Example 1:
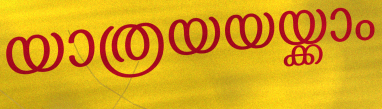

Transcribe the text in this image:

യാത്രയയയ്ക്കാം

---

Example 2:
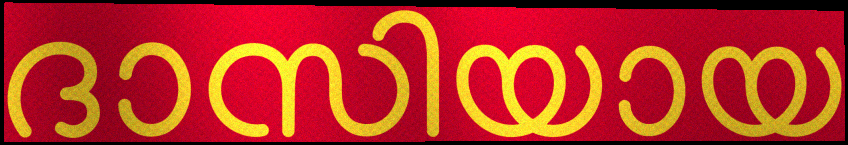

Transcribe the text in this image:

ദാസിയായ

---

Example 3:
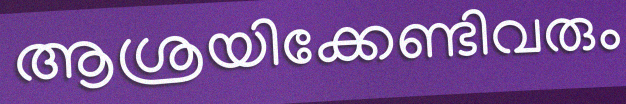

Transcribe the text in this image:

ആശ്രയിക്കേണ്ടിവരും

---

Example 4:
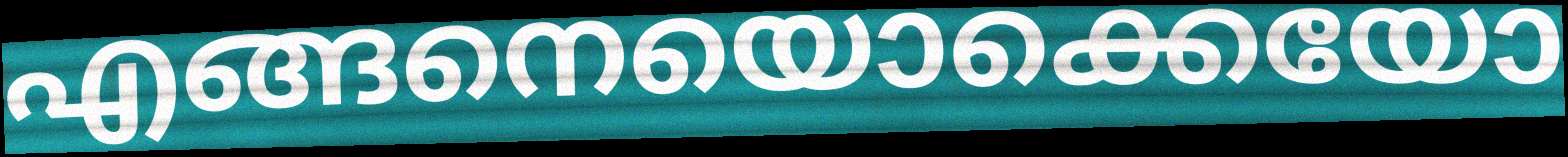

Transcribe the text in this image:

എങ്ങനെയൊക്കെയോ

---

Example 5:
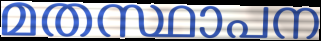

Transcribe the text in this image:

മതസ്ഥാപന